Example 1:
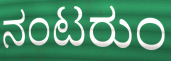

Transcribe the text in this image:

ನಂಟರುಂ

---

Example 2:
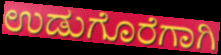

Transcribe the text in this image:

ಉಡುಗೊರೆಗಾಗಿ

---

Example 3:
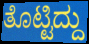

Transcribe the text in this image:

ತೊಟ್ಟಿದ್ದು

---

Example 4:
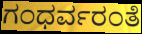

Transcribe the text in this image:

ಗಂಧರ್ವರಂತೆ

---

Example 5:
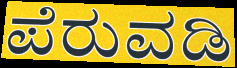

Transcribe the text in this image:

ಪೆರುವಡಿ